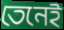
তেনেই